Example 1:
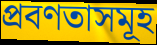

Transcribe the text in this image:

প্রবণতাসমূহ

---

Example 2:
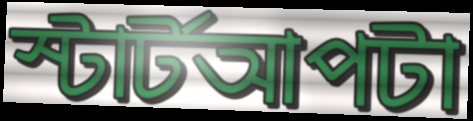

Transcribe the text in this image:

স্টার্টআপটা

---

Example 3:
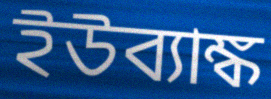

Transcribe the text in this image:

ইউব্যাঙ্ক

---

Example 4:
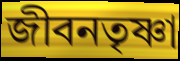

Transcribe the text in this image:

জীবনতৃষ্ণা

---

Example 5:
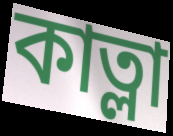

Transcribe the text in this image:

কাত্লা